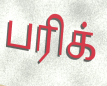
பரிக்